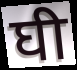
घी